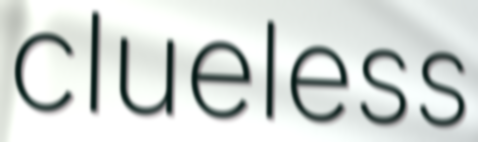
clueless